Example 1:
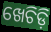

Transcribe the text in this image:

ଖେଚିଡ଼ି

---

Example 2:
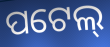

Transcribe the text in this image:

ପଟେଲ୍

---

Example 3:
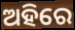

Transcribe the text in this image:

ଅହିରେ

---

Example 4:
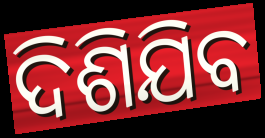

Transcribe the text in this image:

ଦିଶିଯିବ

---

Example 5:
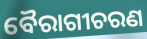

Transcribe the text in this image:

ବୈରାଗୀଚରଣ